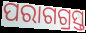
ପରାଗଗ୍ରସ୍ତ